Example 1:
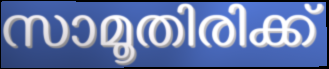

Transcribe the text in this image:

സാമൂതിരിക്ക്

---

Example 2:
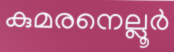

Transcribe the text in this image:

കുമരനെല്ലൂർ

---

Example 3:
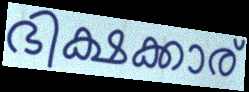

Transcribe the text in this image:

ഭിക്ഷക്കാര്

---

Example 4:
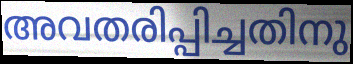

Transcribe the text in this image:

അവതരിപ്പിച്ചതിനു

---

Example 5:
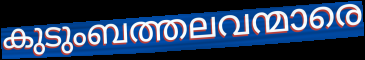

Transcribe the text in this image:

കുടുംബത്തലവന്മാരെ